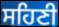
ਸਹਿਣੀ